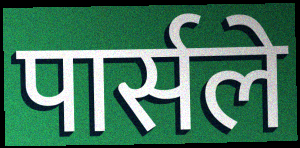
पार्सले